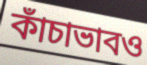
কাঁচাভাবও